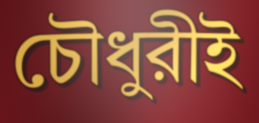
চৌধুরীই